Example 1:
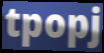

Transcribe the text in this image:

tpopj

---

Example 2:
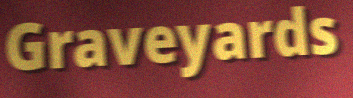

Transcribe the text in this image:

Graveyards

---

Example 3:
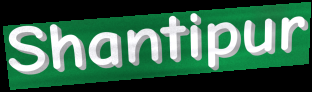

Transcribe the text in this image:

Shantipur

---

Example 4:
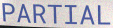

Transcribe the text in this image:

PARTIAL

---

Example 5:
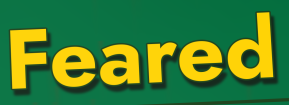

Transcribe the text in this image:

Feared